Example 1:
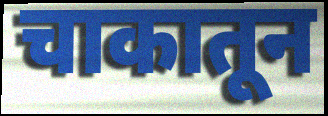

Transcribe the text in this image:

चाकातून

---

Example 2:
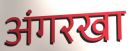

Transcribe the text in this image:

अंगरखा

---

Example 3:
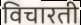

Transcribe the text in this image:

विचारती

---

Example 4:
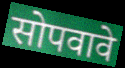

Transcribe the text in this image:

सोपवावे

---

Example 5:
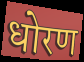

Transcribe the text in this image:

धोरण